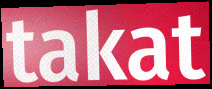
takat